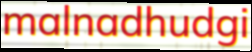
malnadhudgi